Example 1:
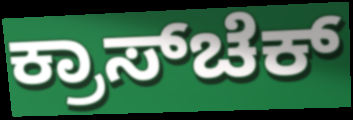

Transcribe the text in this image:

ಕ್ರಾಸ್‌ಚೆಕ್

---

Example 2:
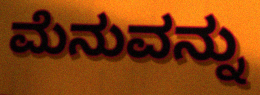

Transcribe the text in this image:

ಮೆನುವನ್ನು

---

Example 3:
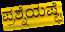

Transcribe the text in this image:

ಪ್ರಶ್ನೆಯಷ್ಟೆ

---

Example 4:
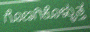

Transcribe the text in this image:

ಗೊಣಗಿಕೊಳ್ಳುತ್ತ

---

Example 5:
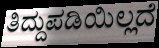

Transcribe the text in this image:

ತಿದ್ದುಪಡಿಯಿಲ್ಲದೆ